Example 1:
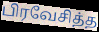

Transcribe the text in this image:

பிரவேசித்த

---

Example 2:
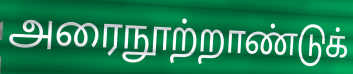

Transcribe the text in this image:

அரைநூற்றாண்டுக்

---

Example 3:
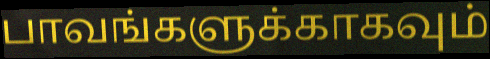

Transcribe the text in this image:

பாவங்களுக்காகவும்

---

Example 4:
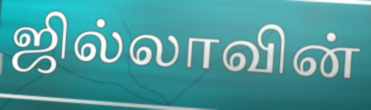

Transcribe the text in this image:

ஜில்லாவின்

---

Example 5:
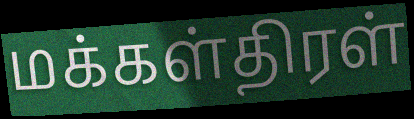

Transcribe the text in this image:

மக்கள்திரள்